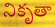
నికృతా